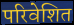
परिवेशित